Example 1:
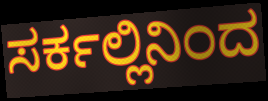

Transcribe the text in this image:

ಸರ್ಕಲ್ಲಿನಿಂದ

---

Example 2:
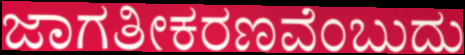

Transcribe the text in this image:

ಜಾಗತೀಕರಣವೆಂಬುದು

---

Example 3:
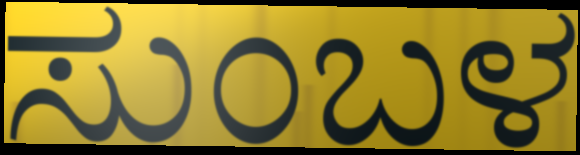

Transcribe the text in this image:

ಸುಂಬಳ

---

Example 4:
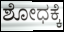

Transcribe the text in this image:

ಶೋಧಕ್ಕೆ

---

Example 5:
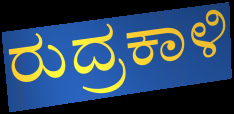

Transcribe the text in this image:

ರುದ್ರಕಾಳಿ